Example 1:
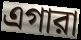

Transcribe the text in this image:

এগারা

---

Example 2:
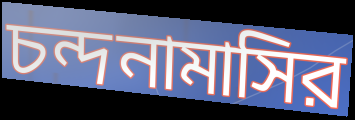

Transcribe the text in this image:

চন্দনামাসির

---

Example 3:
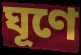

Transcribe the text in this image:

ঘূণে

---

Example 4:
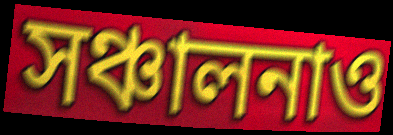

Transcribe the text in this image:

সঞ্চালনাও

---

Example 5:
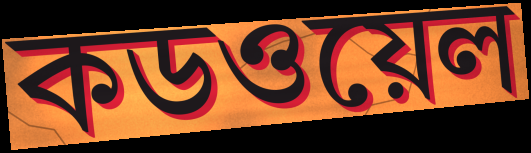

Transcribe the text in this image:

কডওয়েল